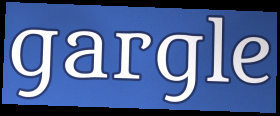
gargle